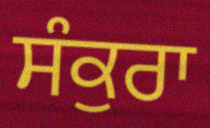
ਸੰਕੁਰਾ